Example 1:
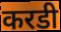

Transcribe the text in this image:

करडी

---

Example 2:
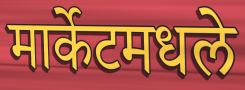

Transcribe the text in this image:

मार्केटमधले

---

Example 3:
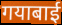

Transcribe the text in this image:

गयाबाई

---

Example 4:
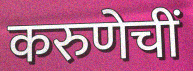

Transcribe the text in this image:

करुणेचीं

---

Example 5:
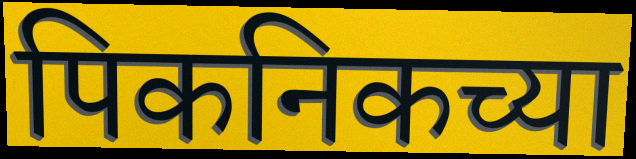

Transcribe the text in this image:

पिकनिकच्या